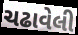
ચઢાવેલી